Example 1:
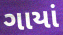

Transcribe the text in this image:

ગાયાં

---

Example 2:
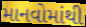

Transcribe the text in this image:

માનવોમાંથી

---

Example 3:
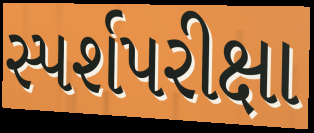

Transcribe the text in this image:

સ્પર્શપરીક્ષા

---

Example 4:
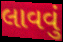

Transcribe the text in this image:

લાવવું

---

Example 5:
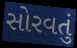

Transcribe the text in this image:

સોરવતું